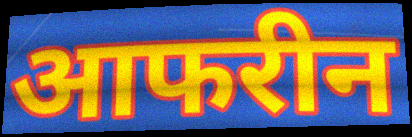
आफरीन